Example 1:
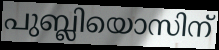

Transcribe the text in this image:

പുബ്ലിയൊസിന്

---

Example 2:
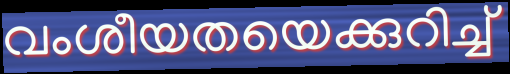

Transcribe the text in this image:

വംശീയതയെക്കുറിച്ച്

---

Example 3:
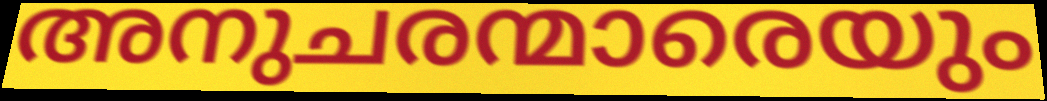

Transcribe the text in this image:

അനുചരന്മാരെയും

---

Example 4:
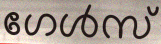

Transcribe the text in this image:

ഗേൾസ്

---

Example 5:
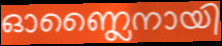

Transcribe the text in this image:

ഓണ്ലൈനായി